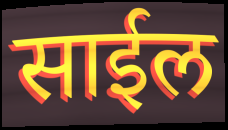
साईल